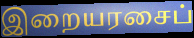
இறையரசைப்